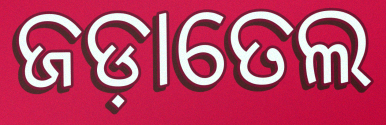
ଜଡ଼ାତେଲ